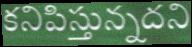
కనిపిస్తున్నదని